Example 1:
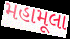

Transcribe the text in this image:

મહામૂલા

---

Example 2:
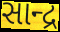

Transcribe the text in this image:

સાન્દ્ર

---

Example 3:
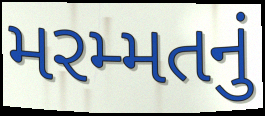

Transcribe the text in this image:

મરમ્મતનું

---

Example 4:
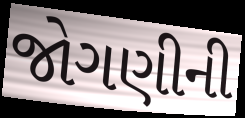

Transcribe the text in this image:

જોગણીની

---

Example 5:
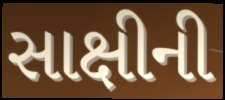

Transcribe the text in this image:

સાક્ષીની